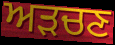
ਅੜਚਣ